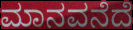
ಮಾನವನೆದೆ